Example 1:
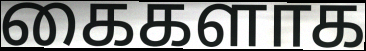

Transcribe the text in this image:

கைகளாக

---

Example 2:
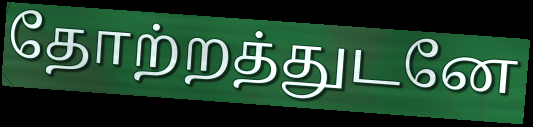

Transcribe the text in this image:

தோற்றத்துடனே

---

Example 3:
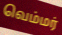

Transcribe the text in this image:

வெம்மர்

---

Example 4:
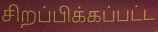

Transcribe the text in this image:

சிறப்பிக்கப்பட்ட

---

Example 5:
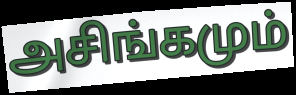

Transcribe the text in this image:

அசிங்கமும்